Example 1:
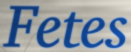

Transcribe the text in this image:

Fetes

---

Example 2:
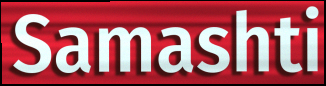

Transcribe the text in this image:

Samashti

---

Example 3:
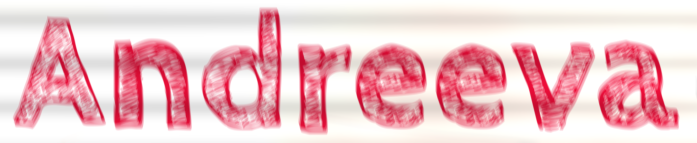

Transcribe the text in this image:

Andreeva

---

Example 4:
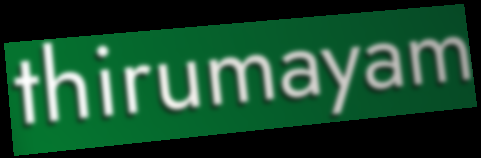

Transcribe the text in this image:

thirumayam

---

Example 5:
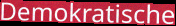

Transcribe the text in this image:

Demokratische